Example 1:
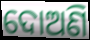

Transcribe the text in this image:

ଦୋଅଣି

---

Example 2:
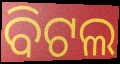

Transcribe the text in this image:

ବିଟଲ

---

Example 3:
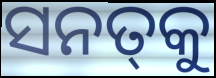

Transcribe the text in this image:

ସନତ୍‍କୁ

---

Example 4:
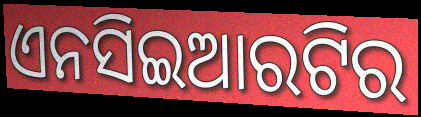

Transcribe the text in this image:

ଏନସିଇଆରଟିର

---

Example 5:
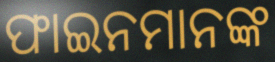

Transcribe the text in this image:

ଫାଇନମାନଙ୍କ